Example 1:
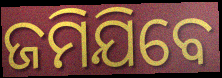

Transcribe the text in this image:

ଜମିଯିବେ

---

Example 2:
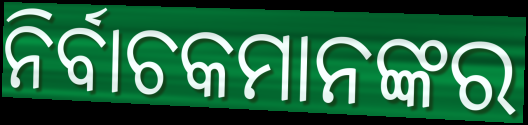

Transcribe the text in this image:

ନିର୍ବାଚକମାନଙ୍କର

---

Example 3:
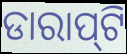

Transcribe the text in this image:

ଡାରାପ୍‌ଟି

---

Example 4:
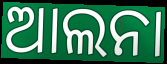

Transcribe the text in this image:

ଆଲନା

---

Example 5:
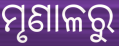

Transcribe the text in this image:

ମୃଣାଳରୁ